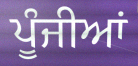
ਪੂੰਜੀਆਂ